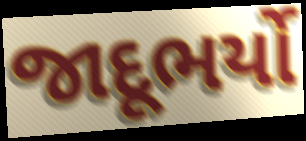
જાદૂભર્યો